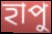
হাপু